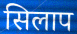
सिलाप